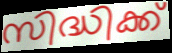
സിദ്ധിക്ക്